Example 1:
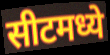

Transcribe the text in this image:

सीटमध्ये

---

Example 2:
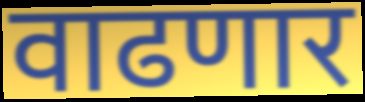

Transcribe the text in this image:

वाढणार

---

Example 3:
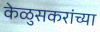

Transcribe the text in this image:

केळुसकरांच्या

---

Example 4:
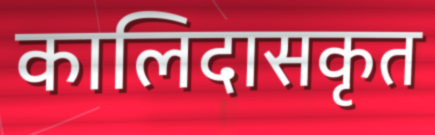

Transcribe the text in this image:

कालिदासकृत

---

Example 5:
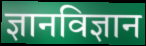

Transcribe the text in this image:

ज्ञानविज्ञान